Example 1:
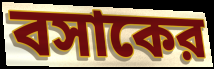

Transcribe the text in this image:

বসাকের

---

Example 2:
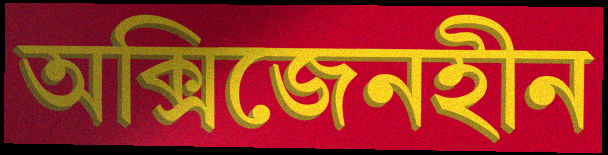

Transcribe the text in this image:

অক্সিজেনহীন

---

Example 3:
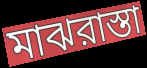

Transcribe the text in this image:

মাঝরাস্তা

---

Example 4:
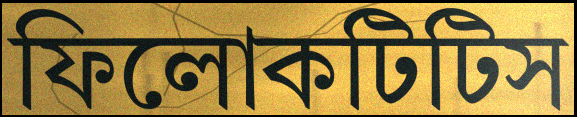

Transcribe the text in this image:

ফিলোকটিটিস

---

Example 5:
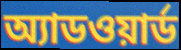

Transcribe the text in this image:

অ্যাডওয়ার্ড